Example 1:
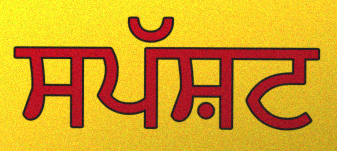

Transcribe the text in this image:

ਸਪੱਸ਼ਟ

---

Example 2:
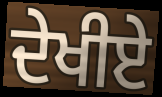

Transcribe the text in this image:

ਦੇਖੀਏ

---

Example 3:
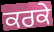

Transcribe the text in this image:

ਕਰਕੇ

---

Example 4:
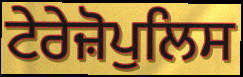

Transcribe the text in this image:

ਟੇਰੇਜ਼ੋਪੁਲਿਸ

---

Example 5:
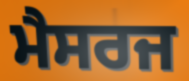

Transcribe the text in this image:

ਮੈਸਰਜ